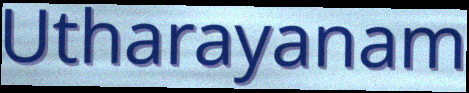
Utharayanam